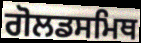
ਗੋਲਡਸਮਿਥ